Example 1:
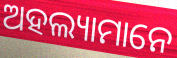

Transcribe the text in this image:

ଅହଲ୍ୟାମାନେ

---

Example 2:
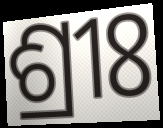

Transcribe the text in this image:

ଶ୍ରୀଃ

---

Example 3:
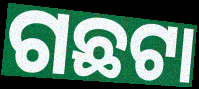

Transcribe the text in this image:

ଗଛଟା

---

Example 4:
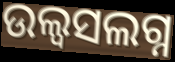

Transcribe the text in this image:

ଉଲ୍ୱସଲଗ୍ନ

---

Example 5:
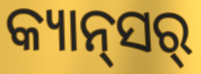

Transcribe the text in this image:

କ୍ୟାନ୍‍ସର୍